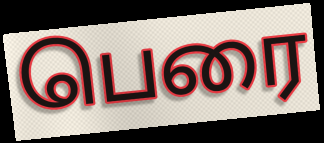
பெரை